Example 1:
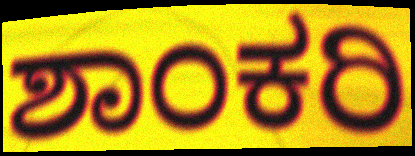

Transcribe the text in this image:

ಶಾಂಕರಿ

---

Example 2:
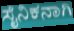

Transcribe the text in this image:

ಸೈನಿಕನಾಗಿ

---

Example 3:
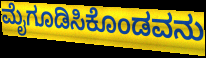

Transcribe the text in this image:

ಮೈಗೂಡಿಸಿಕೊಂಡವನು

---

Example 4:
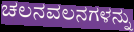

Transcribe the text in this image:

ಚಲನವಲನಗಳನ್ನು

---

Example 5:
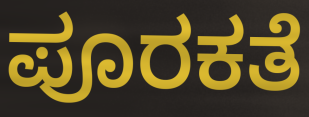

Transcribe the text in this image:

ಪೂರಕತೆ